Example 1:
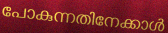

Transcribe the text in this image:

പോകുന്നതിനേക്കാൾ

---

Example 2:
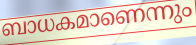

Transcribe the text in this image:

ബാധകമാണെന്നും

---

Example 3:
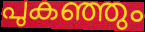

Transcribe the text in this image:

പുകഞ്ഞും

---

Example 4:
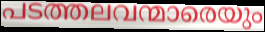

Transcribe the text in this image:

പടത്തലവന്മാരെയും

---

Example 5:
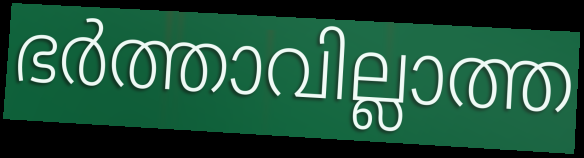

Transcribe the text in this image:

ഭർത്താവില്ലാത്ത